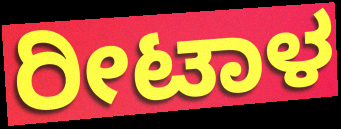
ರೀಟಾಳ